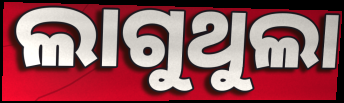
ଲାଗୁଥୁଲା